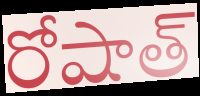
రోషాత్